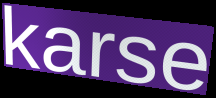
karse